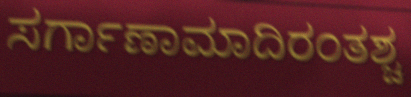
ಸರ್ಗಾಣಾಮಾದಿರಂತಶ್ಚ